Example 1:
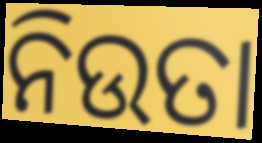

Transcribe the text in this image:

ନିଉତା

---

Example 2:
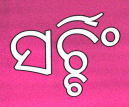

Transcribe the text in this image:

ସର୍ଚ୍ଚିଂ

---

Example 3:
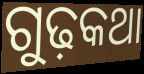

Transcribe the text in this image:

ଗୁଢ଼କଥା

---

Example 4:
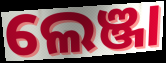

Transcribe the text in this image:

ଲେଞ୍ଜା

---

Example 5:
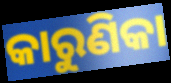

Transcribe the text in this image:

କାରୁଣିକା